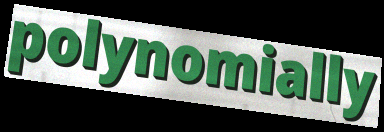
polynomially